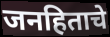
जनहिताचे